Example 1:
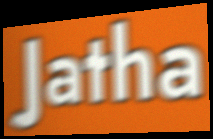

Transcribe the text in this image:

Jatha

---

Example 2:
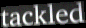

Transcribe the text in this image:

tackled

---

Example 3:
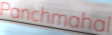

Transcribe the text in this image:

Panchmahal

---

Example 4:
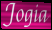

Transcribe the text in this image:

Jogia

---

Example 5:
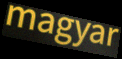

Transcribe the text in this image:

magyar